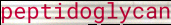
peptidoglycan